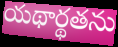
యథార్థతను